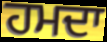
ਹਮਦਾ